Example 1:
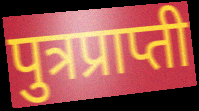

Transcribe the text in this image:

पुत्रप्राप्ती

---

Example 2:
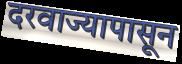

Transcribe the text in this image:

दरवाज्यापासून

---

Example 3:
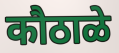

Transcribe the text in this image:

कौठाळे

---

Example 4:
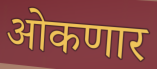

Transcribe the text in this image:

ओकणार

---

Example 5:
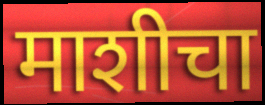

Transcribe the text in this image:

माशीचा